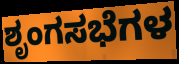
ಶೃಂಗಸಭೆಗಳ